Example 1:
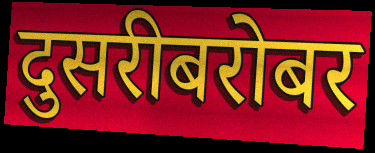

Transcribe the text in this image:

दुसरीबरोबर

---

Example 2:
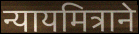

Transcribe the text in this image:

न्यायमित्राने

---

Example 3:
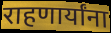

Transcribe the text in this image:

राहणार्यांना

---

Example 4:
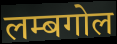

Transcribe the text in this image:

लम्बगोल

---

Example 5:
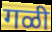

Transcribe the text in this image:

गळी